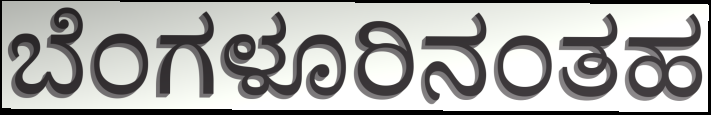
ಬೆಂಗಳೂರಿನಂತಹ